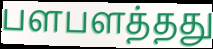
பளபளத்தது